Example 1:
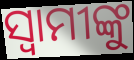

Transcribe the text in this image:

ସ୍ୱାମୀଙ୍କୁ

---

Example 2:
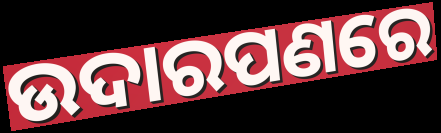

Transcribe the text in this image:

ଉଦାରପଣରେ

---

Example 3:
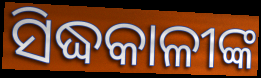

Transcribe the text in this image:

ସିଦ୍ଧକାଳୀଙ୍କ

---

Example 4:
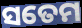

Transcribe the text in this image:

ସତେମ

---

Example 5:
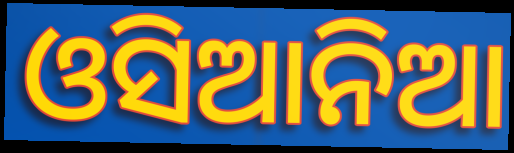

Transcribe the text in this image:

ଓସିଆନିଆ